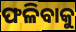
ଫଳିବାକୁ